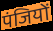
पंजियों